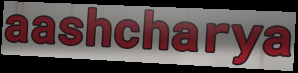
aashcharya